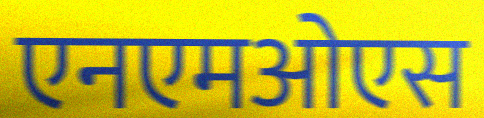
एनएमओएस